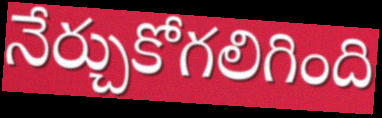
నేర్చుకోగలిగింది